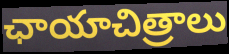
ఛాయాచిత్రాలు